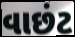
વાછંટ